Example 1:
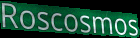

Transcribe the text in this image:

Roscosmos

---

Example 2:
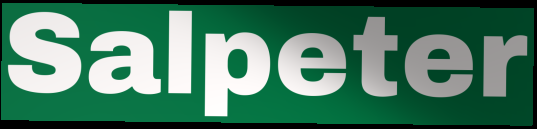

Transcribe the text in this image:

Salpeter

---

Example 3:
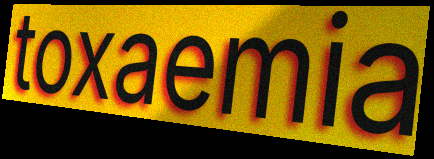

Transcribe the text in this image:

toxaemia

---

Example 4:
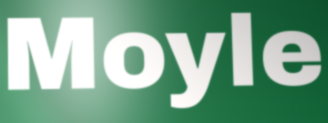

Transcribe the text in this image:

Moyle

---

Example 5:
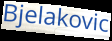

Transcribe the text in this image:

Bjelakovic